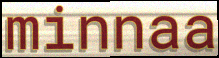
minnaa